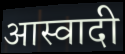
आस्वादी